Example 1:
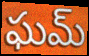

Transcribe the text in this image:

ఘమ్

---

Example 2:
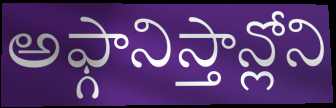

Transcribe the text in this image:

అఫ్గానిస్తాన్లోని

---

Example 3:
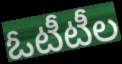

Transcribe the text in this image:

ఓటీటీల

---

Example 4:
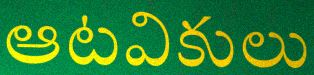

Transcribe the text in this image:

ఆటవికులు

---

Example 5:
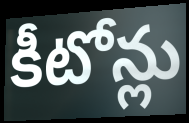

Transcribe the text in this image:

కీటోన్లు